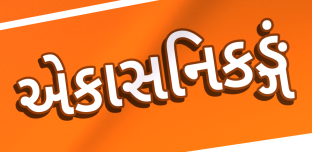
એકાસનિકઙ્ગં